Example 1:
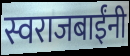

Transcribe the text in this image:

स्वराजबाईंनी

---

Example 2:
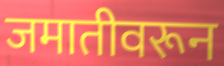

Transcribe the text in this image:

जमातीवरून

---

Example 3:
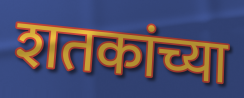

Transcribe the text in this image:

शतकांच्या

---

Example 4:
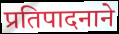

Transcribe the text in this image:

प्रतिपादनाने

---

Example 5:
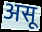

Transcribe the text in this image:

असू